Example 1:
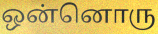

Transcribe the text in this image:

ஒன்னொரு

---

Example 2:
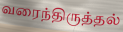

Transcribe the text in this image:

வரைந்திருத்தல்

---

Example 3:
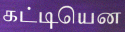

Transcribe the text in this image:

கட்டியென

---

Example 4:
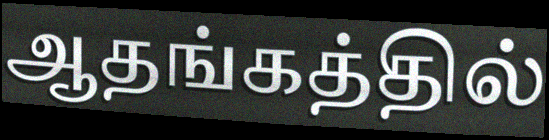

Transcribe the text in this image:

ஆதங்கத்தில்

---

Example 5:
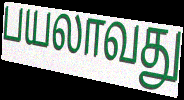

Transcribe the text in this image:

பயலாவது